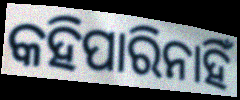
କହିପାରିନାହିଁ